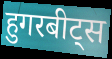
हुगरबीट्स